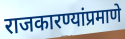
राजकारण्यांप्रमाणे